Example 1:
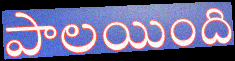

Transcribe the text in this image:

పాలయింది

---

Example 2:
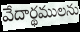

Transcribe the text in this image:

వేదార్థములను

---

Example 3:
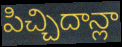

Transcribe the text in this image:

పిచ్చిదాన్లా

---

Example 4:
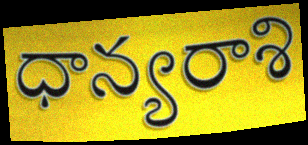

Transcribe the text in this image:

ధాన్యరాశి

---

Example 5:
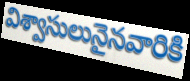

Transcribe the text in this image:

విశ్వాసులునైనవారికి